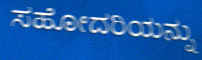
ಸಹೋದರಿಯನ್ನು